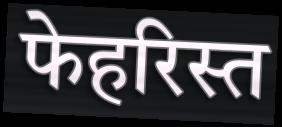
फेहरिस्‍त